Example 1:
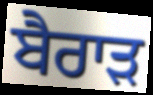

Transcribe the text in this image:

ਬੈਰਾੜ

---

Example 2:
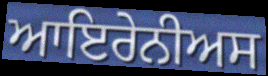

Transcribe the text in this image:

ਆਇਰੇਨੀਅਸ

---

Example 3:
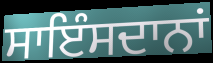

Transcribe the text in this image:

ਸਾਇੰਸਦਾਨਾਂ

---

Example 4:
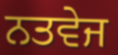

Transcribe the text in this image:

ਨਤਵੇਜ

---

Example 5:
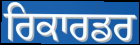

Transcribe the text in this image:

ਰਿਕਾਰਡਰ